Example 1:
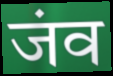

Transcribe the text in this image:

जंव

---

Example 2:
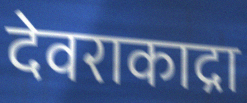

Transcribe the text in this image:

देवराकाद्रा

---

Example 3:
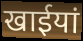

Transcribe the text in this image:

खाईयां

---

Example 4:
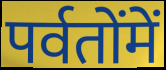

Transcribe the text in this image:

पर्वतोंमें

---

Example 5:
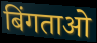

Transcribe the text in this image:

बिंगताओ